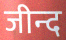
जीन्द